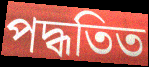
পদ্ধতিত